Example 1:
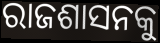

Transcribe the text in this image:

ରାଜଶାସନକୁ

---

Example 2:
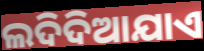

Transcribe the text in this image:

ଲଦିଦିଆଯାଏ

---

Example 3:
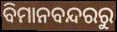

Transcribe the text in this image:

ବିମାନବନ୍ଦରରୁ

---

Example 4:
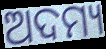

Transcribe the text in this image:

ଅଦମ୍ୟ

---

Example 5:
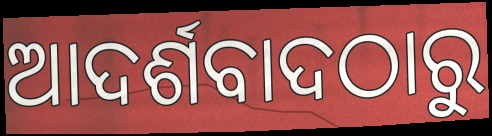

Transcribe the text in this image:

ଆଦର୍ଶବାଦଠାରୁ